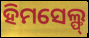
ହିମସେଲ୍ଫ୍